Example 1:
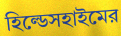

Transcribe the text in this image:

হিল্ডেসহাইমের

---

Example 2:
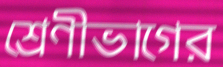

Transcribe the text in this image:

শ্রেণীভাগের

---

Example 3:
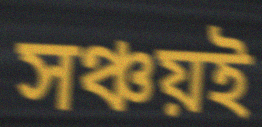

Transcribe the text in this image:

সঞ্চয়ই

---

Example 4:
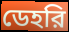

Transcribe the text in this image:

ডেহরি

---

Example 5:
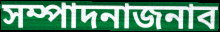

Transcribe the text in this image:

সম্পাদনাজনাব